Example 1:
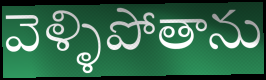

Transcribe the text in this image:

వెళ్ళిపోతాను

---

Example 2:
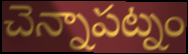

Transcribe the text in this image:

చెన్నాపట్నం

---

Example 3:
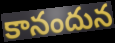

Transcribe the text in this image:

కానందున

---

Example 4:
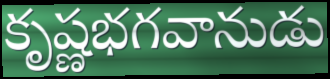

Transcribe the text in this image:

కృష్ణభగవానుడు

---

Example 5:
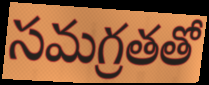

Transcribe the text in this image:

సమగ్రతతో